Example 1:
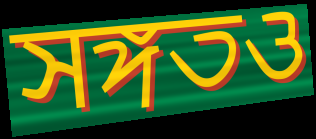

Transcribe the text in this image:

সঙ্গতও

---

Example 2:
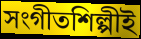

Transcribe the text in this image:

সংগীতশিল্পীই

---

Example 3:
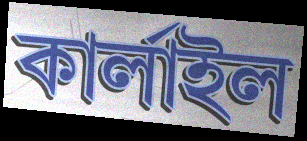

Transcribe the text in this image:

কার্লাইল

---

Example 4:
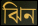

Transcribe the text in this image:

ঝিন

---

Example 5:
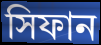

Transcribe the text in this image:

সিফান